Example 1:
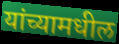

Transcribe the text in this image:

यांच्यामधील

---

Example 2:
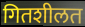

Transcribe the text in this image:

गितशीलत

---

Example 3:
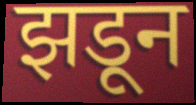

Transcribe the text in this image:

झडून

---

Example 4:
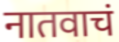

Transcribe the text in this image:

नातवाचं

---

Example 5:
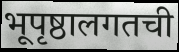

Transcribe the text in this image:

भूपृष्ठालगतची